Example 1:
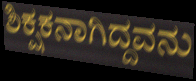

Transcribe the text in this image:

ಶಿಕ್ಷಕನಾಗಿದ್ದವನು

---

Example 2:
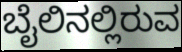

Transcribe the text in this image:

ಬೈಲಿನಲ್ಲಿರುವ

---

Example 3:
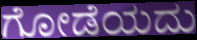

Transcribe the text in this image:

ಗೋಡೆಯದು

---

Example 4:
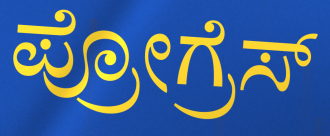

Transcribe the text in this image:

ಪ್ರೋಗ್ರೆಸ್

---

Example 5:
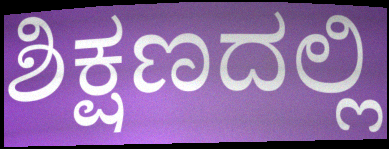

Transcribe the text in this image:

ಶಿಕ್ಷಣದಲ್ಲಿ